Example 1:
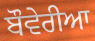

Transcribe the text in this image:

ਬੌਵੇਰੀਆ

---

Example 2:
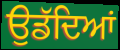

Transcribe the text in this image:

ਉਡੱਦਿਆਂ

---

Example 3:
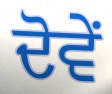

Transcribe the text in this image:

ਦੋਵੇਂ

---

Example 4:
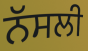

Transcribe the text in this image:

ਨੱਸਲੀ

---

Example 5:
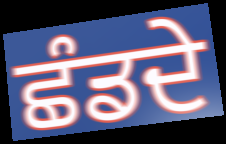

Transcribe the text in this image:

ਛੰਡਦੇ